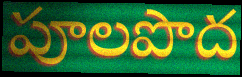
పూలపొద